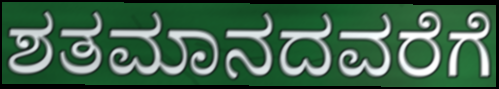
ಶತಮಾನದವರೆಗೆ